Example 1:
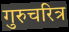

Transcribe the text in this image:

गुरुचरित्र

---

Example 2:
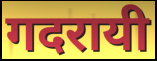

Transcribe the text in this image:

गदरायी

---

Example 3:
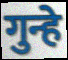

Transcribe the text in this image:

गुन्हे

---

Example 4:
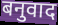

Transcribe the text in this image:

बनुवाद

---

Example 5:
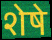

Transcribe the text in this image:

शेषे